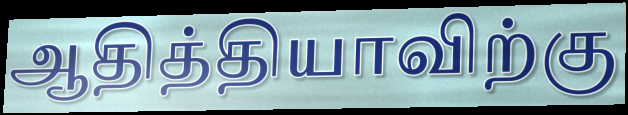
ஆதித்தியாவிற்கு